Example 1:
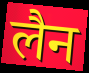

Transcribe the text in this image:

लैन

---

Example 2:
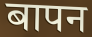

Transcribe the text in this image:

बापन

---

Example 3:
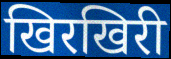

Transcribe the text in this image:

खिरखिरी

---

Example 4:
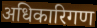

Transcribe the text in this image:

अधिकारिगण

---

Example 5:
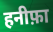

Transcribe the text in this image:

हनीफ़ा